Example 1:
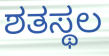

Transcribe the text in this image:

ಶತಸ್ಥಲ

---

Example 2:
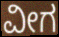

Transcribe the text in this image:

ವೀಗ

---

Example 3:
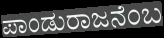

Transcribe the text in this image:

ಪಾಂಡುರಾಜನೆಂಬ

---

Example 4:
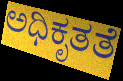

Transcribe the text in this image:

ಅಧಿಕೃತತೆ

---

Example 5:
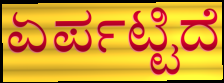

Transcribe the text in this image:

ಏರ್ಪಟ್ಟಿದೆ